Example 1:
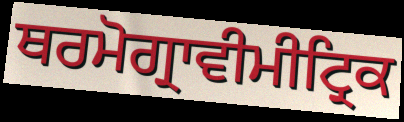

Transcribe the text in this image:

ਥਰਮੋਗ੍ਰਾਵੀਮੀਟ੍ਰਿਕ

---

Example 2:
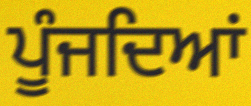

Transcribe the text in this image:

ਪੂੰਜਦਿਆਂ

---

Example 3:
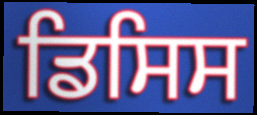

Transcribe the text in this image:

ਡਿਸਿਸ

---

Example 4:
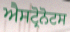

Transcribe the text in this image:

ਐਸਟ੍ਰੋਨੋਟਸ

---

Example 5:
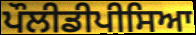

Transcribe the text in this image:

ਪੌਲੀਡੀਪੀਸਿਆ